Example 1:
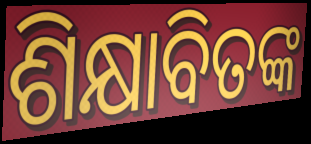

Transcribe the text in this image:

ଶିକ୍ଷାବିତଙ୍କ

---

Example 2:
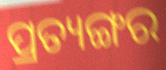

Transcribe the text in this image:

ପ୍ରତ୍ୟଙ୍ଗର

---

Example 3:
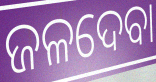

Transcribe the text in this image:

ଜଳଦେବା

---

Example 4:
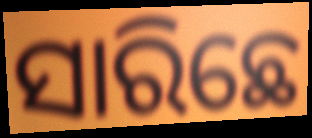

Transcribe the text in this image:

ସାରିଛେ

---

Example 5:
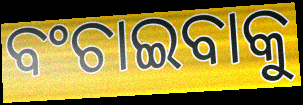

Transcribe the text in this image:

ବଂଚାଇବାକୁ